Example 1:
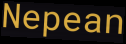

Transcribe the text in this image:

Nepean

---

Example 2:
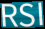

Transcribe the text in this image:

RSI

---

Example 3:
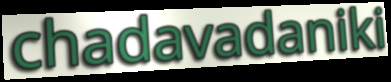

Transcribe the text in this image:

chadavadaniki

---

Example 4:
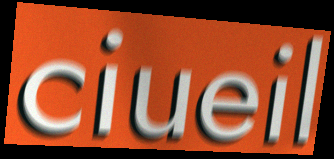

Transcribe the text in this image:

ciueil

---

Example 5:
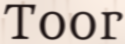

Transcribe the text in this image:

Toor